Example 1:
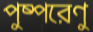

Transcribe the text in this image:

পুষ্পরেণু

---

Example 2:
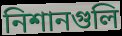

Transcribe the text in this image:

নিশানগুলি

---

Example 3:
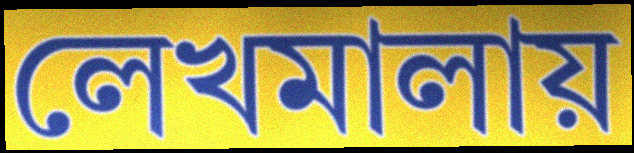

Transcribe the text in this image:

লেখমালায়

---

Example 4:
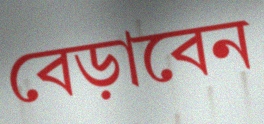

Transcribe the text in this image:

বেড়াবেন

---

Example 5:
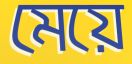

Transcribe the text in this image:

মেয়ে